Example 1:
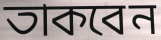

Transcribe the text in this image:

তাকবেন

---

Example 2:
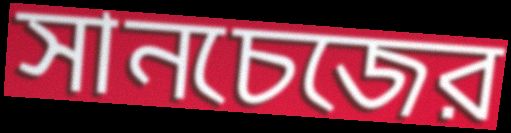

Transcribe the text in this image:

সানচেজের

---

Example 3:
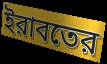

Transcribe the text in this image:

ইরাবতের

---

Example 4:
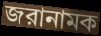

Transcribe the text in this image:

জরানামক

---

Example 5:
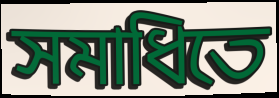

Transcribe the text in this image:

সমাধিতে